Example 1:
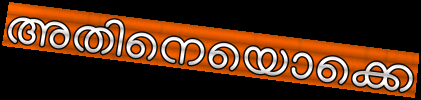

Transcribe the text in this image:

അതിനെയൊക്കെ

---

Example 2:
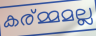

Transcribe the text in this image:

കര്മ്മമല്ല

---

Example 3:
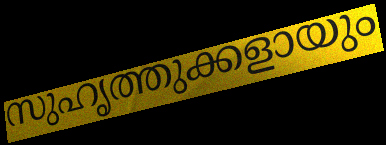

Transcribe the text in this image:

സുഹൃത്തുക്കളായും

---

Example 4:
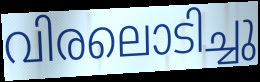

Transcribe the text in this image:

വിരലൊടിച്ചു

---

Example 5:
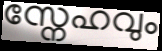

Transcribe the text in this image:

സ്നേഹവും